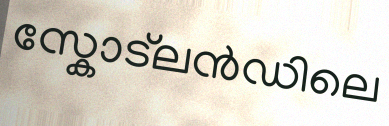
സ്കോട്ലൻഡിലെ